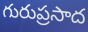
గురుప్రసాద